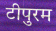
टीपुरम